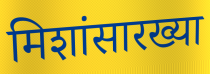
मिशांसारख्या